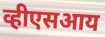
व्हीएसआय